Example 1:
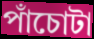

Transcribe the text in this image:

পাঁচোটা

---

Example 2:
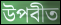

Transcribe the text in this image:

উপবীত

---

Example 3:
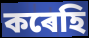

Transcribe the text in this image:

কৰেহি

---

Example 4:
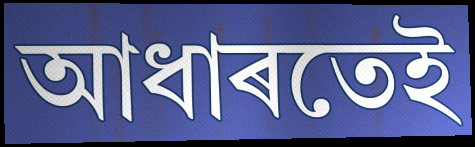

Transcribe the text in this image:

আধাৰতেই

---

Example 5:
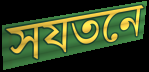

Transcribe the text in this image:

সযতনে